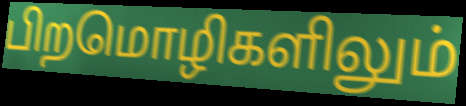
பிறமொழிகளிலும்